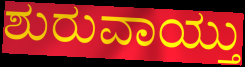
ಶುರುವಾಯ್ತು